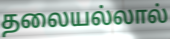
தலையல்லால்